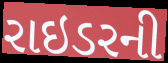
રાઇડરની